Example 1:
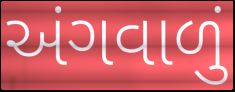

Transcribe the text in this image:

અંગવાળું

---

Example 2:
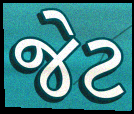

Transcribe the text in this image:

જેટ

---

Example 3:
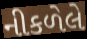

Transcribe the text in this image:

નીકળેલે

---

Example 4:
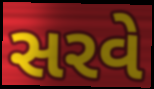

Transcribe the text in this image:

સરવે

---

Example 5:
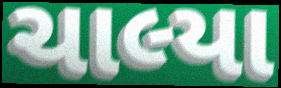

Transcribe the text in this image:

ચાલ્યા